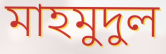
মাহমুদুল